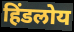
हिंडलोय